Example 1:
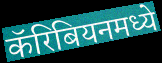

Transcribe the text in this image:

कॅरिबियनमध्ये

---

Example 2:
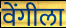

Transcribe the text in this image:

वेंगीला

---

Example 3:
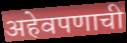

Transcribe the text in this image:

अहेवपणाची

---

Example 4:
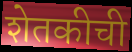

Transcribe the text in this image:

शेतकीची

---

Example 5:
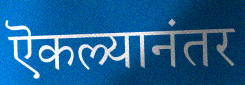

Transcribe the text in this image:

ऎकल्यानंतर